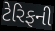
ટેરિફની